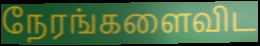
நேரங்களைவிட